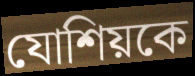
যোশিয়কে